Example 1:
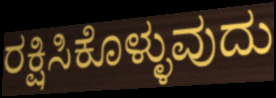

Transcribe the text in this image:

ರಕ್ಷಿಸಿಕೊಳ್ಳುವುದು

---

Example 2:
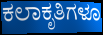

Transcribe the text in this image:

ಕಲಾಕೃತಿಗಳೂ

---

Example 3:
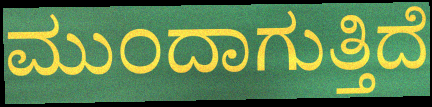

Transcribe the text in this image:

ಮುಂದಾಗುತ್ತಿದೆ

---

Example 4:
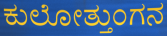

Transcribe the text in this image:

ಕುಲೋತ್ತುಂಗನ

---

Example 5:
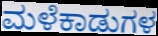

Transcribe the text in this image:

ಮಳೆಕಾಡುಗಳ